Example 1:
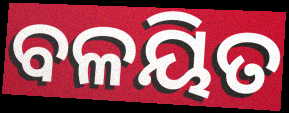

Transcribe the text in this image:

ବଳୟିତ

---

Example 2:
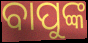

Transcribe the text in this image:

ବାପୁଙ୍କ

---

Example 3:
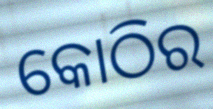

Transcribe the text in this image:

କୋଠିର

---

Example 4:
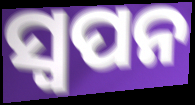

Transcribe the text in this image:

ସ୍ବପନ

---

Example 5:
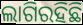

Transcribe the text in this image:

ଲାଗିରହିଛି